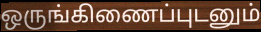
ஒருங்கிணைப்புடனும்